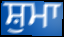
ਸ਼ੁਮਾ